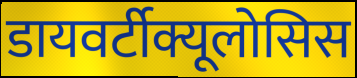
डायवर्टीक्यूलोसिस